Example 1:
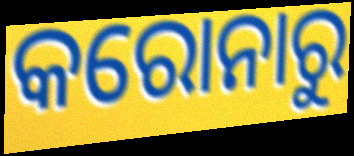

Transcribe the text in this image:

କରୋନାରୁ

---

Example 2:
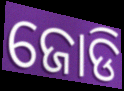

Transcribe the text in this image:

ଜୋଡି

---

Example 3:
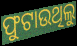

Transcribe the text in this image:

ଫୁଟାଉଥିଲୁ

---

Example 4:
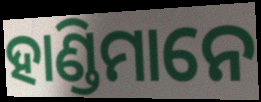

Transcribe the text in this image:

ହାଣ୍ଡିମାନେ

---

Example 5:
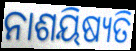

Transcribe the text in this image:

ନାଶୟିଷ୍ୟତି